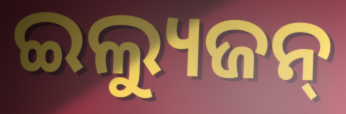
ଇଲ୍ୟୁଜନ୍